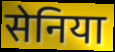
सेनिया